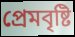
প্রেমবৃষ্টি